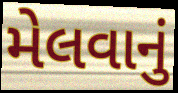
મેલવાનું